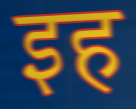
इह